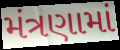
મંત્રણામાં